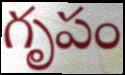
గృపం